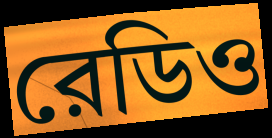
রেডিও